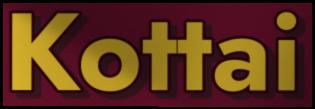
Kottai